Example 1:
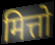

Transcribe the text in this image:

मित्तो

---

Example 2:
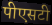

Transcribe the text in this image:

पीएसटी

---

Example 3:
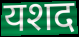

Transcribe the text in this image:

यशद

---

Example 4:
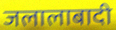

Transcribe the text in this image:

जलालाबादी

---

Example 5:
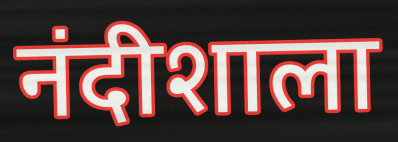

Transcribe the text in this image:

नंदीशाला